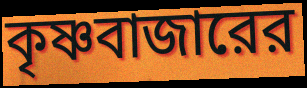
কৃষ্ণবাজারের